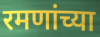
रमणांच्या